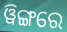
ୱିଙ୍ଗରେ